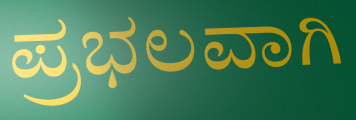
ಪ್ರಭಲವಾಗಿ